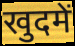
खुदमें